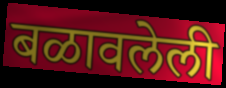
बळावलेली